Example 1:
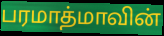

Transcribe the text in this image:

பரமாத்மாவின்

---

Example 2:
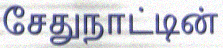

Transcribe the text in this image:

சேதுநாட்டின்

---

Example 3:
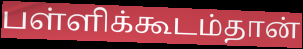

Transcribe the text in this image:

பள்ளிக்கூடம்தான்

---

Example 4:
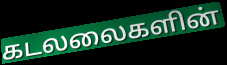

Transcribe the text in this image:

கடலலைகளின்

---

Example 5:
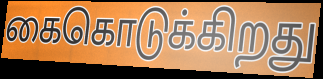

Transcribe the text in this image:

கைகொடுக்கிறது